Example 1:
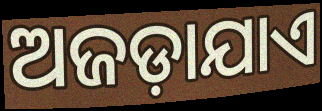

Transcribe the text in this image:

ଅଜଡ଼ାଯାଏ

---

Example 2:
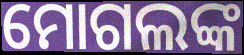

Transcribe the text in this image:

ମୋଗଲଙ୍କ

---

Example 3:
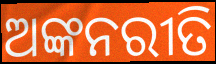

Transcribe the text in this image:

ଅଙ୍କନରୀତି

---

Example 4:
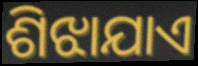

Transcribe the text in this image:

ଶିଝାଯାଏ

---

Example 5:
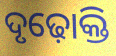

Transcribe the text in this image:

ଦୃଢ଼ୋକ୍ତି